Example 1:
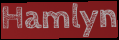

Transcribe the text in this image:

Hamlyn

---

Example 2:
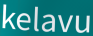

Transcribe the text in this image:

kelavu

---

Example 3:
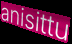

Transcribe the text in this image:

anisittu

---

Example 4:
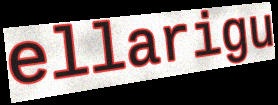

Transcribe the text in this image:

ellarigu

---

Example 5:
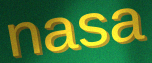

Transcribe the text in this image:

nasa